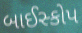
બાઈસ્કોપ